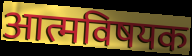
आत्मविषयक